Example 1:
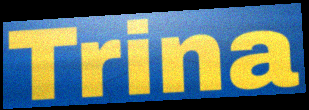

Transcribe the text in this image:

Trina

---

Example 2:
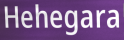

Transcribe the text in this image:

Hehegara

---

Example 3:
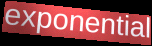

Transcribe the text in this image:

exponential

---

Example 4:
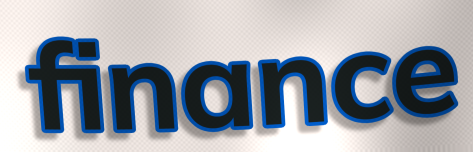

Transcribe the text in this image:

finance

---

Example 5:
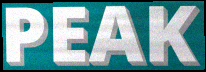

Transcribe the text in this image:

PEAK